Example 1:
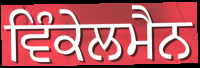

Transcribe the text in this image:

ਵਿੰਕੇਲਮੈਨ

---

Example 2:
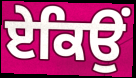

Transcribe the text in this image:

ਏਕਿਉਂ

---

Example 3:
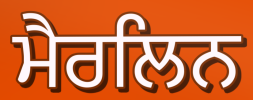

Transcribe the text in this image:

ਮੈਰਲਿਨ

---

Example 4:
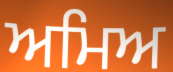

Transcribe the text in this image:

ਅਮਿਅ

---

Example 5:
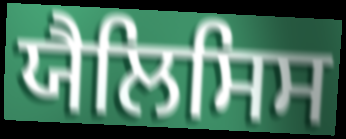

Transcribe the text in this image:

ਯੈਲਿਸਿਸ